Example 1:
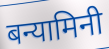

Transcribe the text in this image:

बन्यामिनी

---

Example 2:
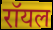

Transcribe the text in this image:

रॉयल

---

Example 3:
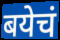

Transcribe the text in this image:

बयेचं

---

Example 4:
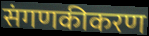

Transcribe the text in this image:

संगणकीकरण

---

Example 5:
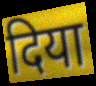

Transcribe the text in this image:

दिया